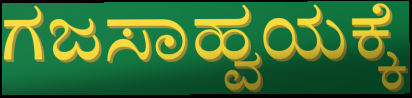
ಗಜಸಾಹ್ವಯಕ್ಕೆ